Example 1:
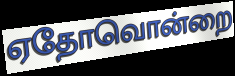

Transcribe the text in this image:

ஏதோவொன்றை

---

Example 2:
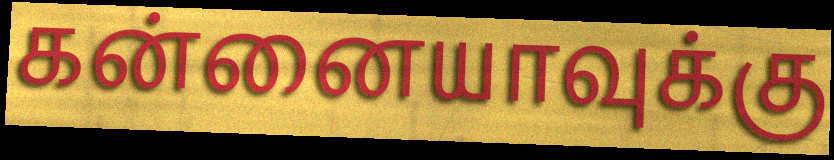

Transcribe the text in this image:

கன்னையாவுக்கு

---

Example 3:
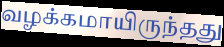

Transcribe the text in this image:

வழக்கமாயிருந்தது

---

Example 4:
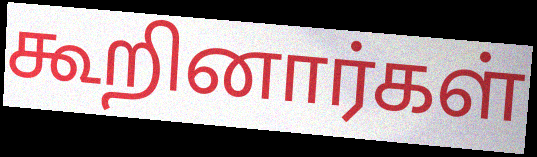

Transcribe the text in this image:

கூறினார்கள்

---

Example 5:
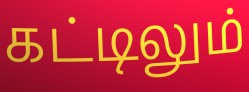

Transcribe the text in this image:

கட்டிலும்